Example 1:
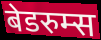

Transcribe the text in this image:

बेडरुम्स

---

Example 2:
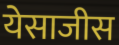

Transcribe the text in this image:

येसाजीस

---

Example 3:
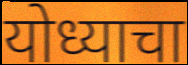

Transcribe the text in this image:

योध्याचा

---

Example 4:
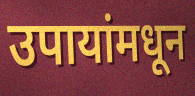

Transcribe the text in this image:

उपायांमधून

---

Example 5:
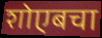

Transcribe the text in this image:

शोएबचा